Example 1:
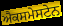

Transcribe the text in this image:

ਐਕਸਮੇਸਟੇਨ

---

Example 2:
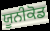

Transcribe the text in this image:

ਯੂਨੀਕੋਡ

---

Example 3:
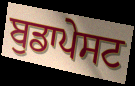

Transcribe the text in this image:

ਬੁਡਾਪੇਸਟ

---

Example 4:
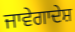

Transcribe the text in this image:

ਜਾਵੇਗਾਦੇਸ਼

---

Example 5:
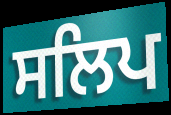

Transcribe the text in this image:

ਸਲਿਪ